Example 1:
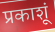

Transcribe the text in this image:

प्रकाशूं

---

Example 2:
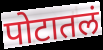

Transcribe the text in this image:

पोटातलं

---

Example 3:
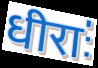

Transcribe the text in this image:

धीराः॑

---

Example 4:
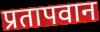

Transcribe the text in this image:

प्रतापवान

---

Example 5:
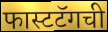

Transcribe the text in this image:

फास्टटॅगची